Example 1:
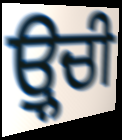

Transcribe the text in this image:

ਉ੍ਨਚੀ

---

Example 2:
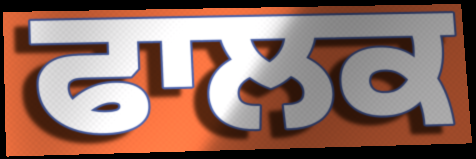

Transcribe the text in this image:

ਫਾਲਕ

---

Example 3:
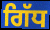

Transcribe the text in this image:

ਗਿੱਧ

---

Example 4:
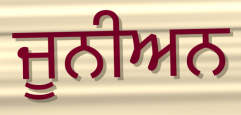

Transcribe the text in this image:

ਜੂਨੀਅਨ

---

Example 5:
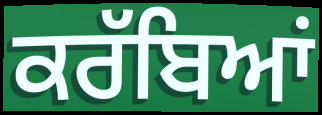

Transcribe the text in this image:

ਕਰੱਬਿਆਂ